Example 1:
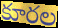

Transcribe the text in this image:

కూరల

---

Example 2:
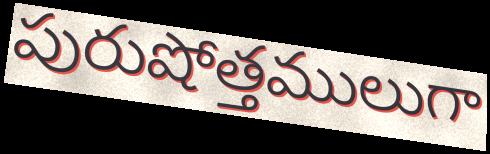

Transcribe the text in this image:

పురుషోత్తములుగా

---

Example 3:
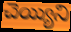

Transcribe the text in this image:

చెయ్యిని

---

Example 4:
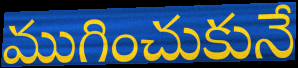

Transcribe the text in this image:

ముగించుకునే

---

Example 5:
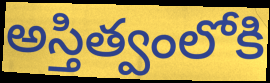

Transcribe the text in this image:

అస్తిత్వంలోకి